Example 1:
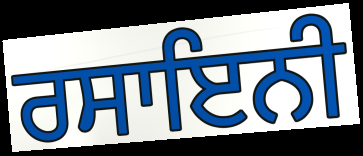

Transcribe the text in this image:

ਰਸਾਇਨੀ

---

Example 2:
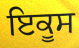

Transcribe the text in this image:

ਇਕੂਸ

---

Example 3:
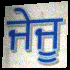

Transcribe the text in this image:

ਜੇਜੂ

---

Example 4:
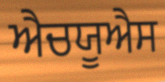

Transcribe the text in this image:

ਐਚਯੂਐਸ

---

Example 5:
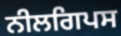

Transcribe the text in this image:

ਨੀਲਗਿਪਸ